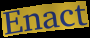
Enact